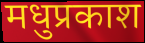
मधुप्रकाश